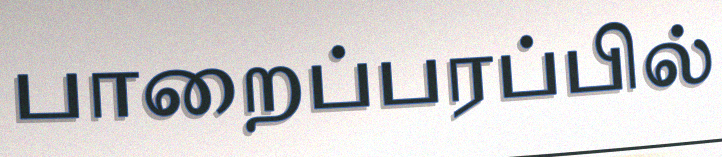
பாறைப்பரப்பில்